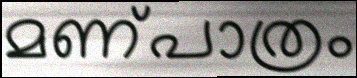
മണ്പാത്രം